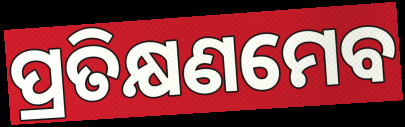
ପ୍ରତିକ୍ଷଣମେବ